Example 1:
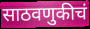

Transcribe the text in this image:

साठवणुकीचं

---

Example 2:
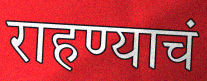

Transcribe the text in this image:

राहण्याचं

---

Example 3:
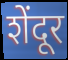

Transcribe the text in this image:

शेंदूर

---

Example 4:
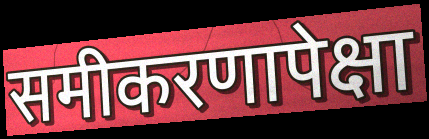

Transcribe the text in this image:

समीकरणापेक्षा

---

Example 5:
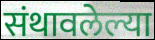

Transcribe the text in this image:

संथावलेल्या